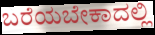
ಬರೆಯಬೇಕಾದಲ್ಲಿ